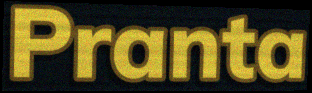
Pranta